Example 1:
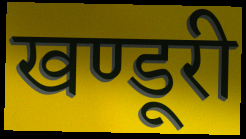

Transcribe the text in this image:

खण्डूरी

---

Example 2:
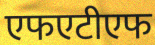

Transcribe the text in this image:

एफएटीएफ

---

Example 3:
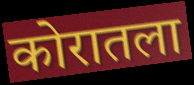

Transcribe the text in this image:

कोरातला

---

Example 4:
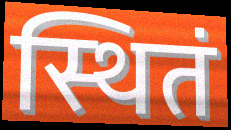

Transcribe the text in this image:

स्थितं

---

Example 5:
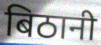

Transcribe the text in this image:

बिठानी